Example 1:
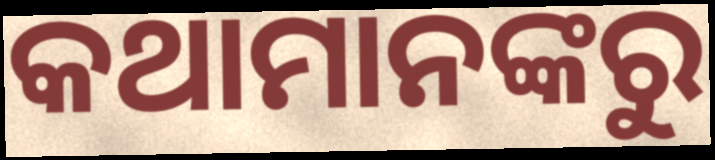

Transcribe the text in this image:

କଥାମାନଙ୍କରୁ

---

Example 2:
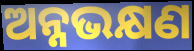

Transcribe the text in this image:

ଅନ୍ନଭକ୍ଷଣ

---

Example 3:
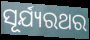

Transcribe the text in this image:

ସୂର୍ଯ୍ୟରଥର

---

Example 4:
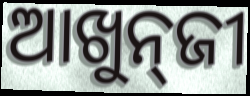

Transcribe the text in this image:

ଆଖୁନ୍‍ଜୀ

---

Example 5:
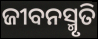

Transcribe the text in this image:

ଜୀବନସ୍ମୃତି